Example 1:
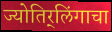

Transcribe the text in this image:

ज्योतिर्लिंगाचा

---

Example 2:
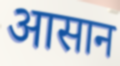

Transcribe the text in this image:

आसान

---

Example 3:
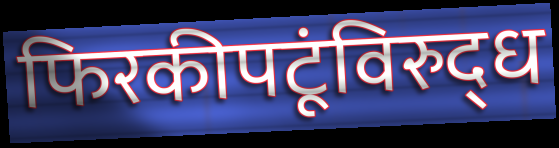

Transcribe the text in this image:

फिरकीपटूंविरुद्ध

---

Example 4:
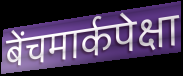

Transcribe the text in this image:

बेंचमार्कपेक्षा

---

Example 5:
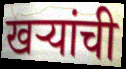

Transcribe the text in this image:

खऱ्यांची